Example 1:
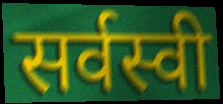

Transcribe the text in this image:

सर्वस्वी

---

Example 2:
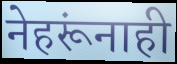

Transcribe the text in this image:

नेहरूंनाही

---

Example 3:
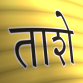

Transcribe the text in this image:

ताशे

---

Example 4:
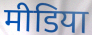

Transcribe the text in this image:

मीडिया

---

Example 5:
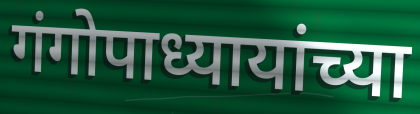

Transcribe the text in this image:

गंगोपाध्यायांच्या